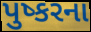
પુષ્કરના